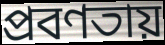
প্রবণতায়